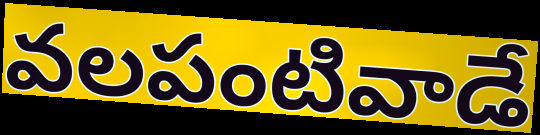
వలపంటివాడే